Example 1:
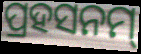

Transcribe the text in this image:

ପ୍ରହସନମ୍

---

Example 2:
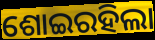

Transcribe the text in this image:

ଶୋଇରହିଲା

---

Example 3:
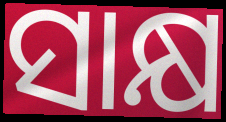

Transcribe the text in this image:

ସାକ୍ଷ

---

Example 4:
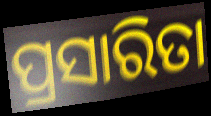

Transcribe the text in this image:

ପ୍ରସାରିତା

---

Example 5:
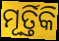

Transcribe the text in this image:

ମୂର୍ତ୍ତିକି